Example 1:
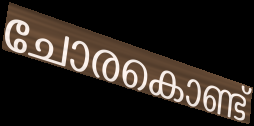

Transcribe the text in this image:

ചോരകൊണ്ട്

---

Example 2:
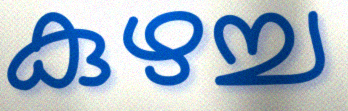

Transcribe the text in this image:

കുഴച്ച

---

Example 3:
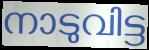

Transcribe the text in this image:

നാടുവിട്ട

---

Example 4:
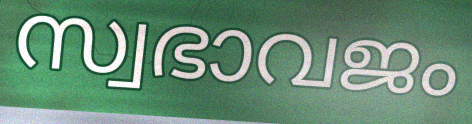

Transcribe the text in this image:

സ്വഭാവജം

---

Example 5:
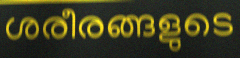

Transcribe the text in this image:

ശരീരങ്ങളുടെ